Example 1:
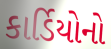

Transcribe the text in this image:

કાર્ડિયોનો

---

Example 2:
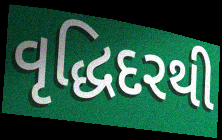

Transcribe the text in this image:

વૃદ્ધિદરથી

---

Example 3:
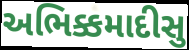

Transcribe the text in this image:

અભિક્કમાદીસુ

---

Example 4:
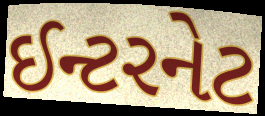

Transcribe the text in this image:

ઈન્ટરનેટ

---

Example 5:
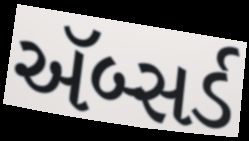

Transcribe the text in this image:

ઍબ્સર્ડ